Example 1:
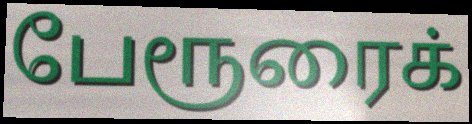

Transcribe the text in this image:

பேரூரைக்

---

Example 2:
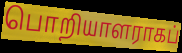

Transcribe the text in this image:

பொறியாளராகப்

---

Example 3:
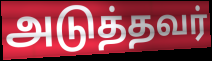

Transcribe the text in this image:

அடுத்தவர்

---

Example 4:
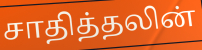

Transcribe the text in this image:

சாதித்தலின்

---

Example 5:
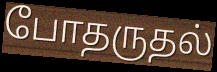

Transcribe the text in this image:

போதருதல்